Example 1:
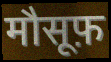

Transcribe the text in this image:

मौसूफ़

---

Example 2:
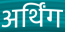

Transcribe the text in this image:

अर्थिंग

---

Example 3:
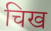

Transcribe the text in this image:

चिख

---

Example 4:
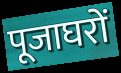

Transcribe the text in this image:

पूजाघरों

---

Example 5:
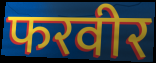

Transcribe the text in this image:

फरवीर